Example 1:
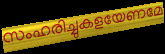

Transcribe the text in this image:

സംഹരിച്ചുകളയേണമേ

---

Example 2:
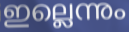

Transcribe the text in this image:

ഇല്ലെന്നും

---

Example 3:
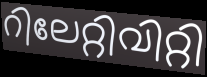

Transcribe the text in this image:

റിലേറ്റിവിറ്റി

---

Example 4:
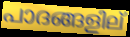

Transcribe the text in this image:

പാദങ്ങളില്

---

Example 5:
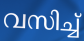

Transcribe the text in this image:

വസിച്ച്